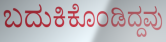
ಬದುಕಿಕೊಂಡಿದ್ದವು